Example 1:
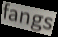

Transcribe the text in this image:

fangs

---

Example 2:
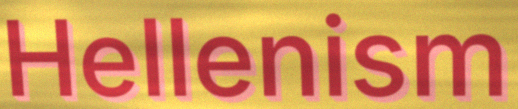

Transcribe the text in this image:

Hellenism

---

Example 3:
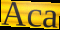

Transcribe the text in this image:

Aca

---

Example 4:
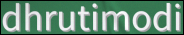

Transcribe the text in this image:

dhrutimodi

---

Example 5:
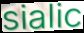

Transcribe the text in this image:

sialic